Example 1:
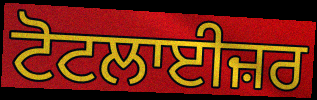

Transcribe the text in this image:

ਟੋਟਲਾਈਜ਼ਰ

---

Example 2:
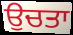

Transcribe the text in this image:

ਉਚਤਾ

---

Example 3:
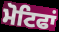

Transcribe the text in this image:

ਮੋਟਿਫਾਂ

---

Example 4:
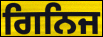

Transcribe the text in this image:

ਗਿਨਿਜ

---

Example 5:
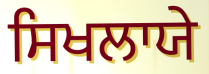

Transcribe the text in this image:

ਸਿਖਲਾਯੇ